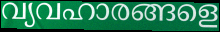
വ്യവഹാരങ്ങളെ